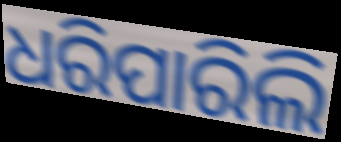
ଧରିପାରିଲି